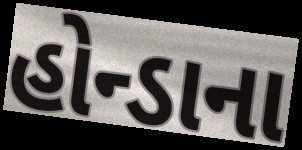
હોન્ડાના